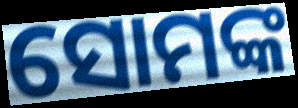
ସୋମଙ୍କ